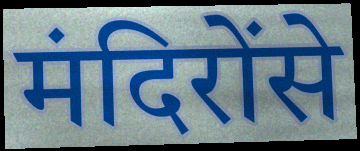
मंदिरोंसे